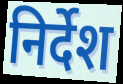
निर्देश